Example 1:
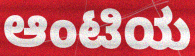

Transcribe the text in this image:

ಆಂಟಿಯ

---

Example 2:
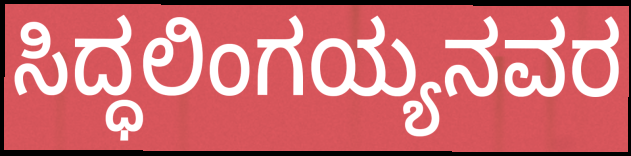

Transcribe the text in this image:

ಸಿದ್ಧಲಿಂಗಯ್ಯನವರ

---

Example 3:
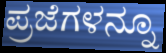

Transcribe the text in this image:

ಪ್ರಜೆಗಳನ್ನೂ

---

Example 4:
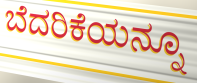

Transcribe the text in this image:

ಬೆದರಿಕೆಯನ್ನೂ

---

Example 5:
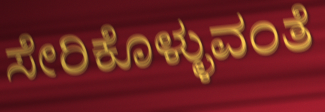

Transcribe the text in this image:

ಸೇರಿಕೊಳ್ಳುವಂತೆ